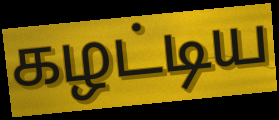
கழட்டிய